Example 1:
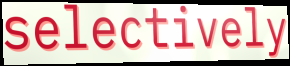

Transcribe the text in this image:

selectively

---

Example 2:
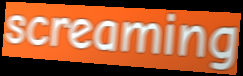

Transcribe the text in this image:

screaming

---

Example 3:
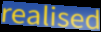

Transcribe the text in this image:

realised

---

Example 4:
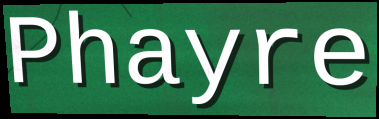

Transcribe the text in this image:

Phayre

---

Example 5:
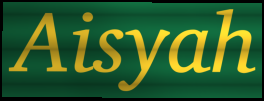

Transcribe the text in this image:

Aisyah